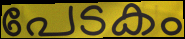
പേടകം